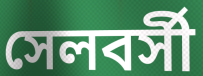
সেলবর্সী